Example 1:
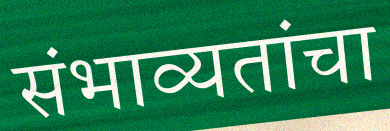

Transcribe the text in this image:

संभाव्यतांचा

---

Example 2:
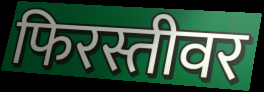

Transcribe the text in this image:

फिरस्तीवर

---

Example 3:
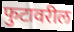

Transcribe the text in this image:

फुटावरील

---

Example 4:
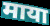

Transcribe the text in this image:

माया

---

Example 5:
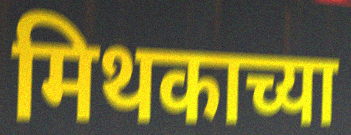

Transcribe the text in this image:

मिथकाच्या